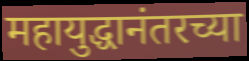
महायुद्धानंतरच्या